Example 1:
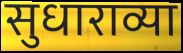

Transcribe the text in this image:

सुधाराव्या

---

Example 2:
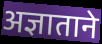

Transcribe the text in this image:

अज्ञाताने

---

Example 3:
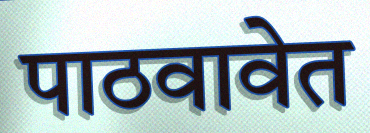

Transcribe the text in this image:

पाठवावेत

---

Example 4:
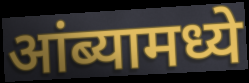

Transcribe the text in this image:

आंब्यामध्ये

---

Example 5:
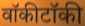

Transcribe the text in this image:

वॉकीटॉकी